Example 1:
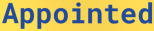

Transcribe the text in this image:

Appointed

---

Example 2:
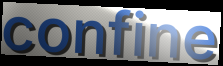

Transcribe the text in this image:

confine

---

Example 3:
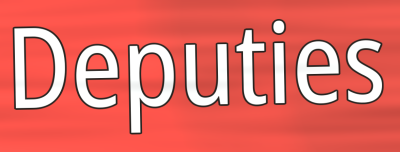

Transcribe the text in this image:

Deputies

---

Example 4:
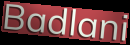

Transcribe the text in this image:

Badlani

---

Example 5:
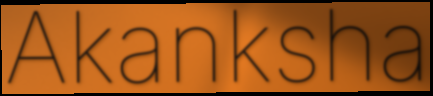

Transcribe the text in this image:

Akanksha